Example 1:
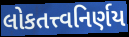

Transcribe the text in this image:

લોકતત્ત્વનિર્ણય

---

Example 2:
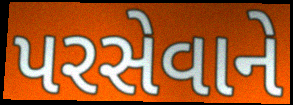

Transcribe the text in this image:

પરસેવાને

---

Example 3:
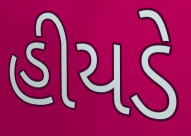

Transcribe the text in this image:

હીયડે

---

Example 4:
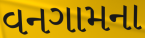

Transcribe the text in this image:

વનગામના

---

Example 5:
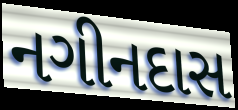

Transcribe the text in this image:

નગીનદાસ